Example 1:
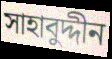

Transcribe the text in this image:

সাহাবুদ্দীন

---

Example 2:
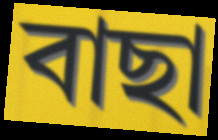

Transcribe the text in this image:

বাছা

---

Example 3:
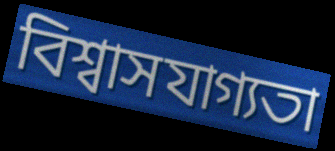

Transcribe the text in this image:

বিশ্বাসযাগ্যতা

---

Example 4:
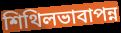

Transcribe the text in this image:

শিথিলভাবাপন্ন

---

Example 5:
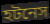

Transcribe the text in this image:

হটনেস